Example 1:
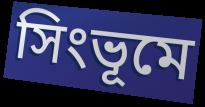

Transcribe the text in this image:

সিংভূমে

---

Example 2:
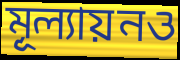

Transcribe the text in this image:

মূল্যায়নও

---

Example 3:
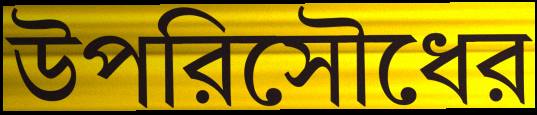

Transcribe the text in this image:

উপরিসৌধের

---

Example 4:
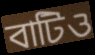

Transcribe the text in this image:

বাটিও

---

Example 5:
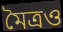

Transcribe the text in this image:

মৈত্রও